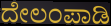
ದೇಲಂಪಾಡಿ